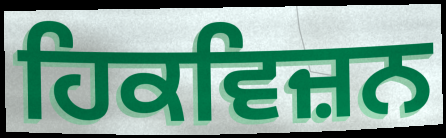
ਹਿਕਵਿਜ਼ਨ